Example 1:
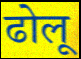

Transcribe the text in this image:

ढोलू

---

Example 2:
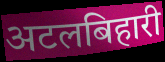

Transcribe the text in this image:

अटलबिहारी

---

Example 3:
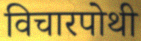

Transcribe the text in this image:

विचारपोथी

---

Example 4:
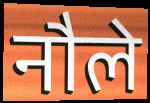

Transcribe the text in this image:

नौले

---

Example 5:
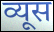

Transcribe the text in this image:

व्यूस